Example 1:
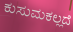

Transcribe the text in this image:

ಕುಸುಮಕಲ್ಲದೆ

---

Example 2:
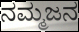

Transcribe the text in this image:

ನಮ್ಮಜನ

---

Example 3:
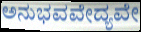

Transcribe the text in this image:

ಅನುಭವವೇದ್ಯವೇ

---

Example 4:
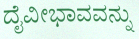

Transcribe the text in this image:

ದೈವೀಭಾವವನ್ನು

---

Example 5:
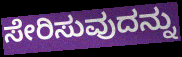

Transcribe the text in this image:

ಸೇರಿಸುವುದನ್ನು